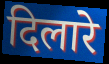
दिलारे